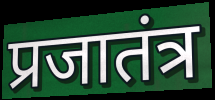
प्रजातंत्र